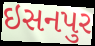
ઇસનપુર